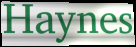
Haynes